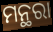
ମନ୍ଥରା